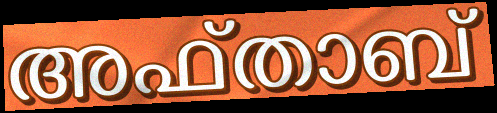
അഫ്താബ്